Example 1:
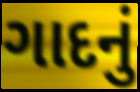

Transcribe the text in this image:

ગાદનું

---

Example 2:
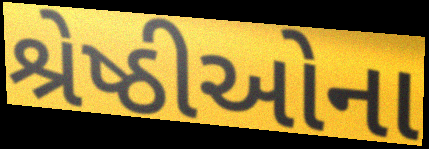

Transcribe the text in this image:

શ્રેષ્ઠીઓના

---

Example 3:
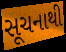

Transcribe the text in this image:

સૂચનાથી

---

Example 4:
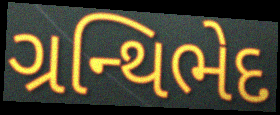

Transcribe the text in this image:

ગ્રન્થિભેદ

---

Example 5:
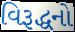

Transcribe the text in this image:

વિરૂદ્ધનો